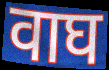
वाघ